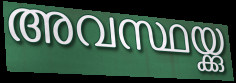
അവസ്ഥയ്ക്കു